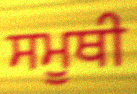
ਸਮੂਥੀ